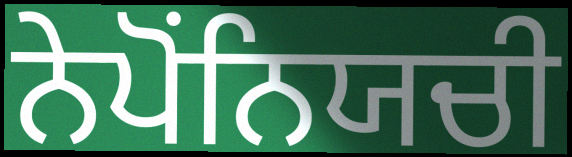
ਨੇਪੋਂਨਿਯਚੀ